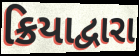
ક્રિયાદ્વારા